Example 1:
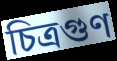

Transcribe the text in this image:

চিত্রগুণ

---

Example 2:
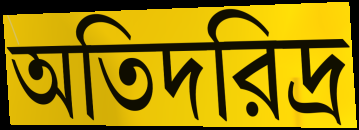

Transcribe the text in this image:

অতিদরিদ্র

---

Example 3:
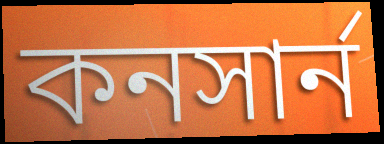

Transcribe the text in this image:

কনসার্ন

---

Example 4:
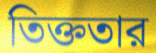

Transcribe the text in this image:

তিক্ততার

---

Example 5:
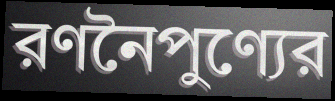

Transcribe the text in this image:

রণনৈপুণ্যের